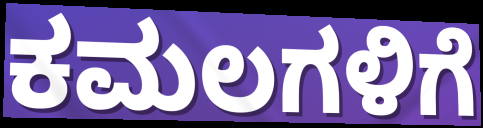
ಕಮಲಗಳಿಗೆ